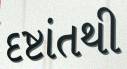
દષ્ટાંતથી